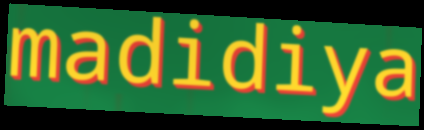
madidiya